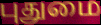
புதுமை